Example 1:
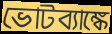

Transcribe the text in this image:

ভোটব্যাঙ্কে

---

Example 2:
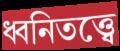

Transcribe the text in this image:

ধ্বনিতত্ত্বে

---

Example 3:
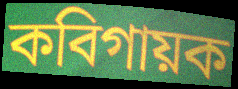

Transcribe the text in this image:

কবিগায়ক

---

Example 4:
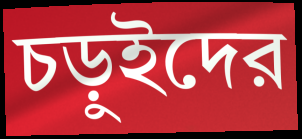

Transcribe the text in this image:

চড়ুইদের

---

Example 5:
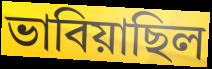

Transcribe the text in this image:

ভাবিয়াছিল